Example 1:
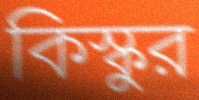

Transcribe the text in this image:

কিস্কুর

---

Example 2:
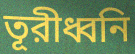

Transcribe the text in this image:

তূরীধ্বনি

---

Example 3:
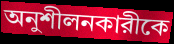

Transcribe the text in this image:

অনুশীলনকারীকে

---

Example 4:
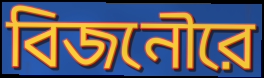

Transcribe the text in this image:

বিজনৌরে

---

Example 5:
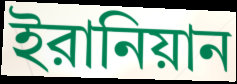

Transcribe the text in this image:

ইরানিয়ান